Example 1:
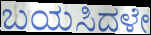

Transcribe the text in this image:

ಬಯಸಿದಳೇ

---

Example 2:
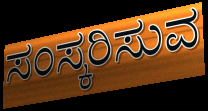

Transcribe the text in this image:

ಸಂಸ್ಕರಿಸುವ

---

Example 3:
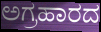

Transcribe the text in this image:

ಅಗ್ರಹಾರದ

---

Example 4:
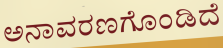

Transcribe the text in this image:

ಅನಾವರಣಗೊಂಡಿದೆ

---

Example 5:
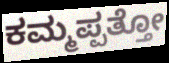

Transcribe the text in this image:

ಕಮ್ಮಪ್ಪತ್ತೋ